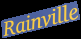
Rainville